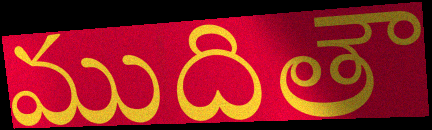
ముదితౌ